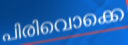
പിരിവൊക്കെ